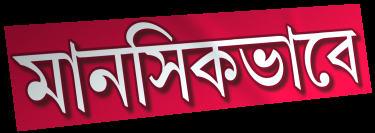
মানসিকভাবে